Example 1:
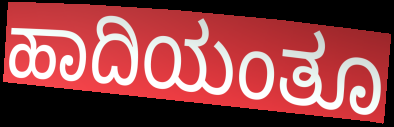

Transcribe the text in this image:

ಹಾದಿಯಂತೂ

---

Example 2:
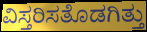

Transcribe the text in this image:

ವಿಸ್ತರಿಸತೊಡಗಿತ್ತು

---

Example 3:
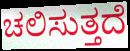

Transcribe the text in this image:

ಚಲಿಸುತ್ತದೆ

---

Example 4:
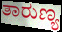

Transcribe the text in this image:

ತಾರುಣ್ಯ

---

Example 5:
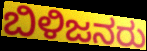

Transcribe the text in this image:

ಬಿಳಿಜನರು